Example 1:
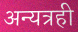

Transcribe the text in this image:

अन्यत्रही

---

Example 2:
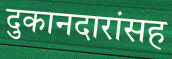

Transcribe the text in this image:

दुकानदारांसह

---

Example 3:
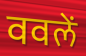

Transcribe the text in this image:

ववलें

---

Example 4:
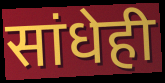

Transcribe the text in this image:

सांधेही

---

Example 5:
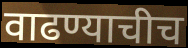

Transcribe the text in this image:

वाढण्याचीच